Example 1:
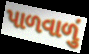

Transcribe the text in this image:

પાળવાળું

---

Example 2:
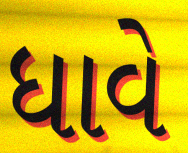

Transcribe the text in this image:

ધાવે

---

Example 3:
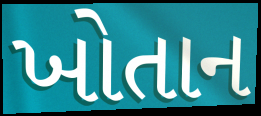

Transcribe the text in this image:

ખોતાન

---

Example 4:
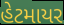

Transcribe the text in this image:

હેટમાયર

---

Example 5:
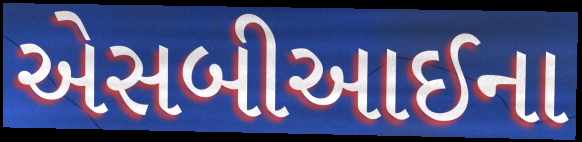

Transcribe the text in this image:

એસબીઆઈના